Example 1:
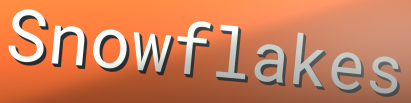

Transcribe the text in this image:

Snowflakes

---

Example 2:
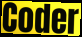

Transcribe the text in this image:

Coder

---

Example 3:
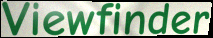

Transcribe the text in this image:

Viewfinder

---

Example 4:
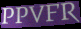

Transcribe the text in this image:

PPVFR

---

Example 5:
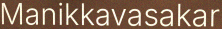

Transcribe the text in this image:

Manikkavasakar